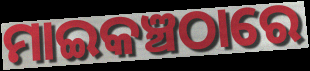
ମାଇକଞ୍ଚଠାରେ